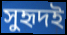
সুহৃদই